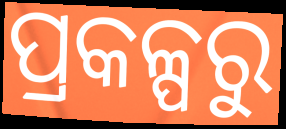
ପ୍ରକଳ୍ପରୁ